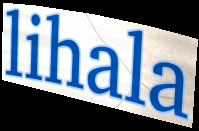
lihala